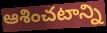
ఆశించటాన్ని